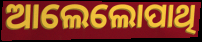
ଆଲେଲୋପାଥି